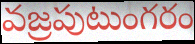
వజ్రపుటుంగరం